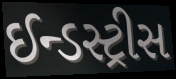
ઈન્ડસ્ટ્રીસ